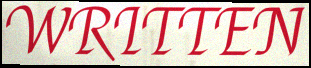
WRITTEN